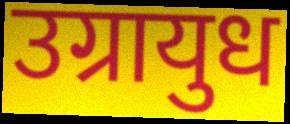
उग्रायुध